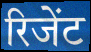
रिजेंट